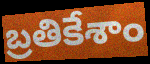
బ్రతికేశాం